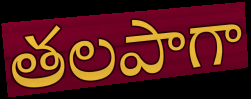
తలపాగా